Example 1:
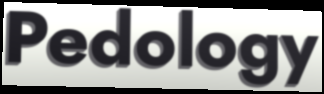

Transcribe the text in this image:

Pedology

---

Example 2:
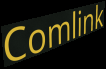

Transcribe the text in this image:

Comlink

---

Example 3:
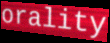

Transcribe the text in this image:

orality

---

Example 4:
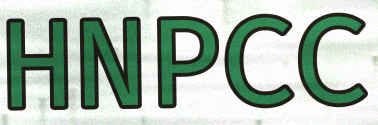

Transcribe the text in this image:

HNPCC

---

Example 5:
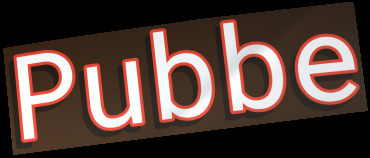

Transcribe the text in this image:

Pubbe